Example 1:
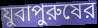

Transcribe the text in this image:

যুবাপুরুষের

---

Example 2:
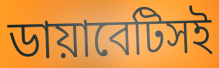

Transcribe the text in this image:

ডায়াবেটিসই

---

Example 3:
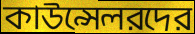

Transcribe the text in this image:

কাউন্সেলরদের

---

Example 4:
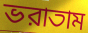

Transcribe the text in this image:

ভরাতাম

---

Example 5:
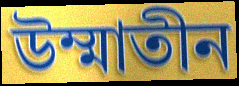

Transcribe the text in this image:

উম্মাতীন